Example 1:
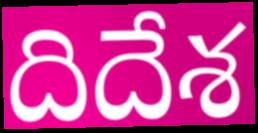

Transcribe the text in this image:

దిదేశ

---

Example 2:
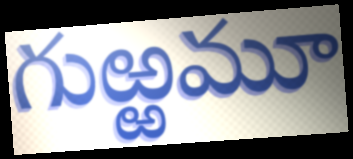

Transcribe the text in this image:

గుఱ్ఱమూ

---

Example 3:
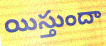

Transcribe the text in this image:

యిస్తుందా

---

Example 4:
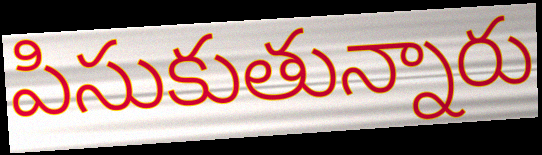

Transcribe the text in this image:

పిసుకుతున్నారు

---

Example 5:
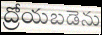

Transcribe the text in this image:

ద్రోయబడెను